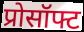
प्रोसॉफ्ट